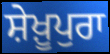
ਸ਼ੇਖ਼ੂਪੁਰਾ